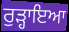
ਰੁੜ੍ਹਾਇਆ